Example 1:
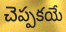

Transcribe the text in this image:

చెప్పకయే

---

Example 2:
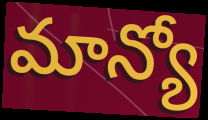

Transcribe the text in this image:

మాన్యో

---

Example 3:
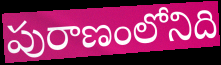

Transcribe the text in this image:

పురాణంలోనిది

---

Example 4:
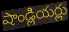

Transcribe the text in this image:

షాండ్లియర్లు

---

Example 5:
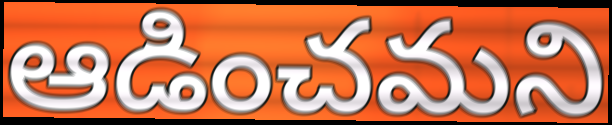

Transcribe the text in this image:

ఆడించమని